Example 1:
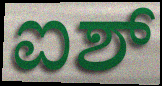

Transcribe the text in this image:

ಐಶ್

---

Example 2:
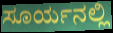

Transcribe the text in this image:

ಸೂರ್ಯನಲ್ಲಿ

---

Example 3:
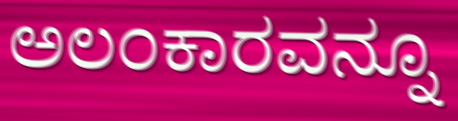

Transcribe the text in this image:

ಅಲಂಕಾರವನ್ನೂ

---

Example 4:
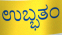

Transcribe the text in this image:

ಉಬ್ಭತಂ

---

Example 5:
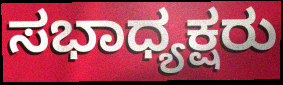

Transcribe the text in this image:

ಸಭಾಧ್ಯಕ್ಷರು